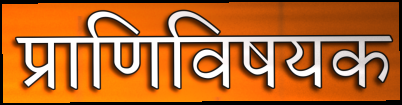
प्राणिविषयक